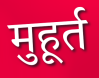
मुहूर्त